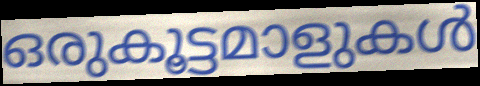
ഒരുകൂട്ടമാളുകൾ